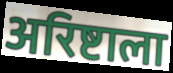
अरिष्टाला